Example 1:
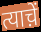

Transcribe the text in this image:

त्याच़ें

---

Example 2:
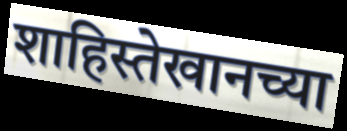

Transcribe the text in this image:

शाहिस्तेखानच्या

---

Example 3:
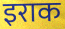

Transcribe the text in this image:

इराक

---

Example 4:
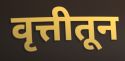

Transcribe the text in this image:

वृत्तीतून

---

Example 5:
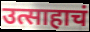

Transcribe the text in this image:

उत्साहाचं